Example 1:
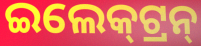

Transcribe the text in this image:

ଇଲେକ୍‍ଟ୍ରନ୍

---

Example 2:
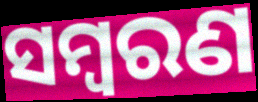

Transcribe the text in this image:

ସମ୍ଵରଣ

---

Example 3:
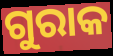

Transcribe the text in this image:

ଗୁରାକ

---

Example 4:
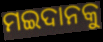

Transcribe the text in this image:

ମଇଦାନକୁ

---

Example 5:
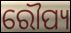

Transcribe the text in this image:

ରୌପ୍ୟ